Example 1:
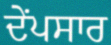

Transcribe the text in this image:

ਦੇਂਪਸਾਰ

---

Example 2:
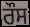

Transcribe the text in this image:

ਰੌਸ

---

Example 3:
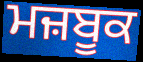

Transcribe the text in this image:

ਮਜ਼ਬੂਕ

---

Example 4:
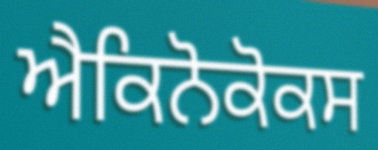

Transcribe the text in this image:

ਐਕਿਨੋਕੋਕਸ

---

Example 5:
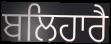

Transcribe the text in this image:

ਬਲਿਹਾਰੈ